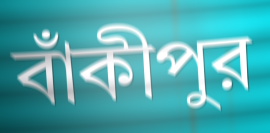
বাঁকীপুর